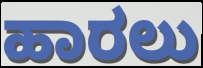
ಹಾರಲು